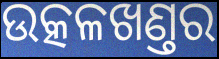
ଉତ୍କଳଖଣ୍ତର